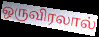
ஒருவிரலால்